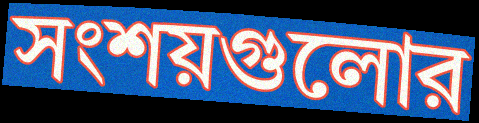
সংশয়গুলোর